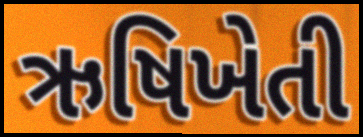
ઋષિખેતી